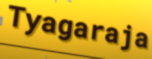
Tyagaraja